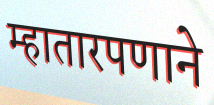
म्हातारपणाने